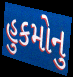
હુકમોનુ